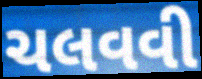
ચલવવી